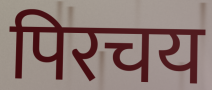
पिरचय